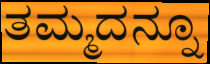
ತಮ್ಮದನ್ನೂ